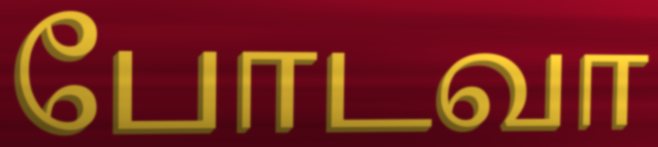
போடவா